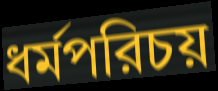
ধর্মপরিচয়